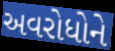
અવરોધોને